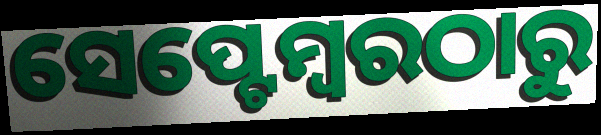
ସେପ୍ଟେମ୍ବରଠାରୁ